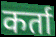
कर्ता